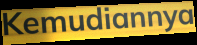
Kemudiannya